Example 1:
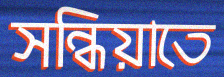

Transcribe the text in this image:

সন্ধিয়াতে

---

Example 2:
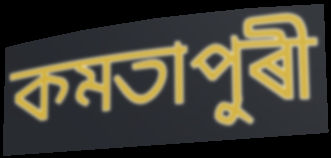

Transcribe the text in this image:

কমতাপুৰী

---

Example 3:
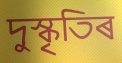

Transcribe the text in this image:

দুস্কৃতিৰ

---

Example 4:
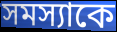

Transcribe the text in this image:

সমস্যাকে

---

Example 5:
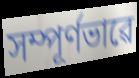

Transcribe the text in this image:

সম্পূৰ্ণভাৱে